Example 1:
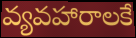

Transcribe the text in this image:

వ్యవహారాలకే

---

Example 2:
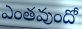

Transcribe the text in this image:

ఎంతవుందో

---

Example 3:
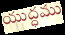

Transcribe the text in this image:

యుద్ధము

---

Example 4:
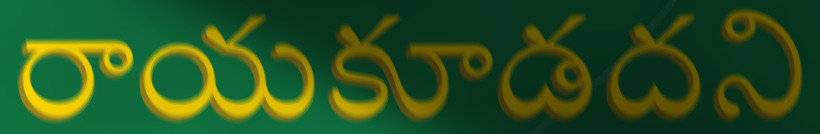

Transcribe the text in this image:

రాయకూడదని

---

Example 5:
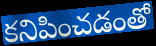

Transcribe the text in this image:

కనిపించడంతో